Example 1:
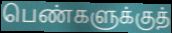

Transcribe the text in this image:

பெண்களுக்குத்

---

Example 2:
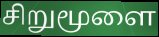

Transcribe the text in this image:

சிறுமூளை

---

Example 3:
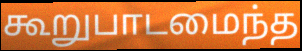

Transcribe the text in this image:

கூறுபாடமைந்த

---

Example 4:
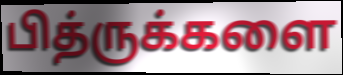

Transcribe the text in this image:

பித்ருக்களை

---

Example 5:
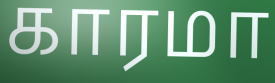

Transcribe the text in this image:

காரமா